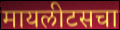
मायलीटसचा